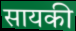
सायकी